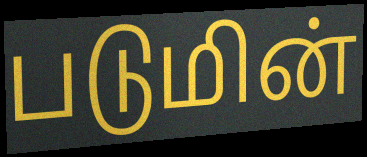
படுமின்